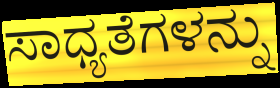
ಸಾಧ್ಯತೆಗಳನ್ನು